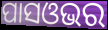
ପାସଓଭର